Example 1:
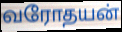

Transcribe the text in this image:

வரோதயன்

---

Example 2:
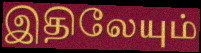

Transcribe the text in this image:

இதிலேயும்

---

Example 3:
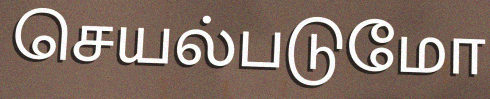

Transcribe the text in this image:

செயல்படுமோ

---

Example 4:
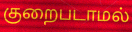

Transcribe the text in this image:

குறைபடாமல்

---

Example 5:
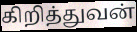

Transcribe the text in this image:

கிறித்துவன்